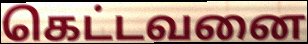
கெட்டவனை